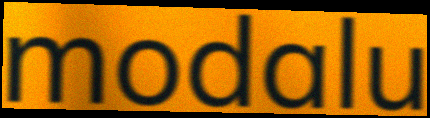
modalu